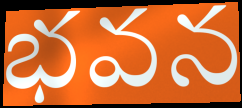
భవన